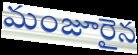
మంజూరైన